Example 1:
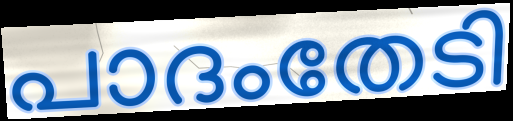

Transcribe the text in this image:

പാദംതേടി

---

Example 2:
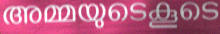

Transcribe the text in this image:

അമ്മയുടെകൂടെ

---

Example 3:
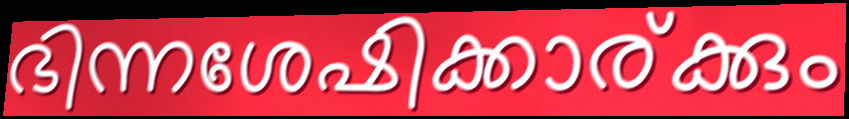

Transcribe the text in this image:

ഭിന്നശേഷിക്കാര്ക്കും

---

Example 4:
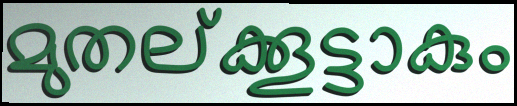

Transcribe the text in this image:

മുതല്ക്കൂട്ടാകും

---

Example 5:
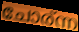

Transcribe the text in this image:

ചോര്ന്ന